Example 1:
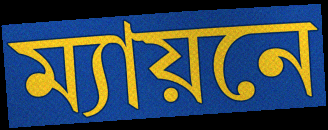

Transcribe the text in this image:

ম্যায়নে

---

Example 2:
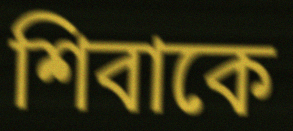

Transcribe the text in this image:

শিবাকে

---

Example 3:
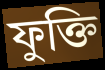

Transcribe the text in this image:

ফুক্তি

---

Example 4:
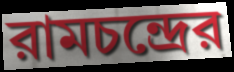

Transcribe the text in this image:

রামচন্দ্রের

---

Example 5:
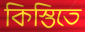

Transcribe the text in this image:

কিস্তিতে